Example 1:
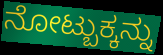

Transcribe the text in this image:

ನೋಟ್ಬುಕ್ಕನ್ನು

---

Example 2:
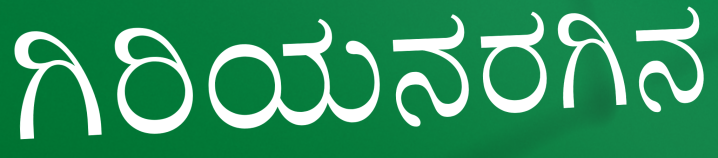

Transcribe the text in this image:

ಗಿರಿಯನರಗಿನ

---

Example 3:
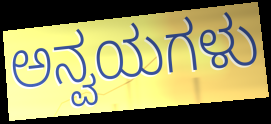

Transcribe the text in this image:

ಅನ್ವಯಗಳು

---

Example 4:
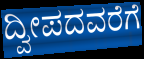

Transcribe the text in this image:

ದ್ವೀಪದವರೆಗೆ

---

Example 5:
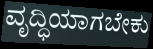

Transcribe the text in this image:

ವೃದ್ಧಿಯಾಗಬೇಕು